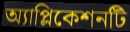
অ্যাপ্লিকেশনটি